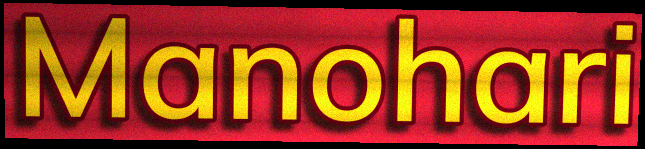
Manohari